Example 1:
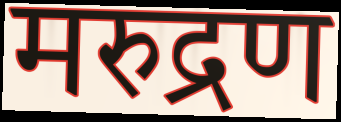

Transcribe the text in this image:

मरुद्रण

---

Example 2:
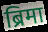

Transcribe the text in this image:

ब्रिमा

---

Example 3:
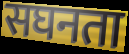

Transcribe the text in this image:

सघनता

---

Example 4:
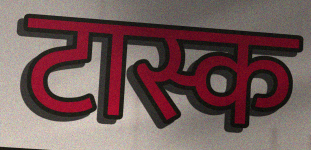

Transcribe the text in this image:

टास्क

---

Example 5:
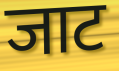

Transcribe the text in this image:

जाट